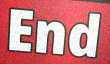
End